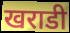
खराडी